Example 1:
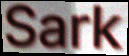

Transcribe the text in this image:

Sark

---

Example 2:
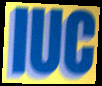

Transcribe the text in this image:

IUC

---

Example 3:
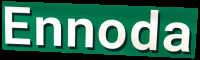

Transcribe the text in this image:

Ennoda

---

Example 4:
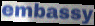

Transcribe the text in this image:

embassy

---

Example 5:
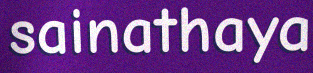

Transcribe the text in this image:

sainathaya